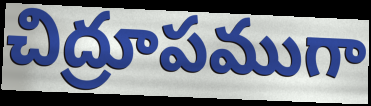
చిద్రూపముగా